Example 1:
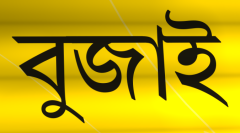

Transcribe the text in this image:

বুজাই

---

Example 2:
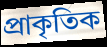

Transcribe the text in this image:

প্ৰাকৃতিক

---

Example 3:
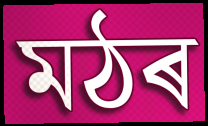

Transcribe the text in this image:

মঠৰ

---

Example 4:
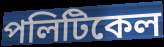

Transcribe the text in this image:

পলিটিকেল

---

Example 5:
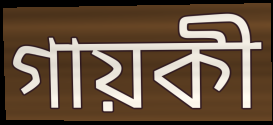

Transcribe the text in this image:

গায়কী